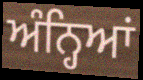
ਅੰਨ੍ਹਿਆਂ